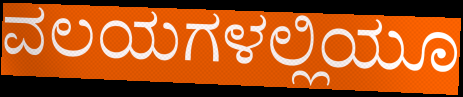
ವಲಯಗಳಲ್ಲಿಯೂ